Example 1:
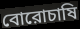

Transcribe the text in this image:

বোরোচাষি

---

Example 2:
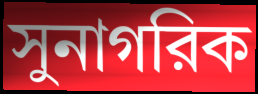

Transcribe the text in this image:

সুনাগরিক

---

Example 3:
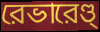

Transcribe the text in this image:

রেভারেণ্ড্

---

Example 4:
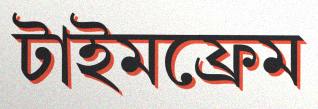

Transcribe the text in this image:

টাইমফ্রেম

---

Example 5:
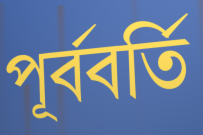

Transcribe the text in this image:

পূর্ববর্তি